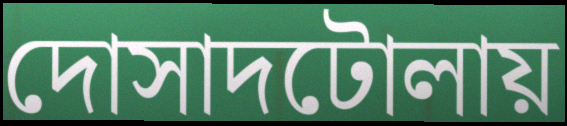
দোসাদটোলায়